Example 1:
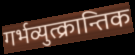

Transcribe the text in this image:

गर्भव्युत्क्रान्तिक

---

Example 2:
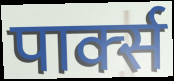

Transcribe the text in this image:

पार्क्‍स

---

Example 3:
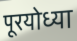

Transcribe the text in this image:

पूरयोध्या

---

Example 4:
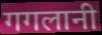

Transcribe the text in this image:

गगलानी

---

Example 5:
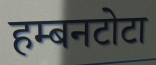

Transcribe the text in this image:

हम्बनटोटा